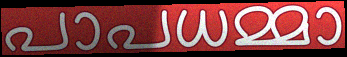
പാപധമ്മാ